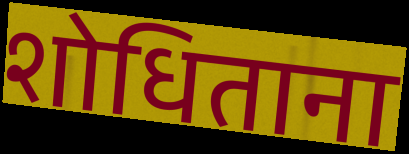
शोधिताना